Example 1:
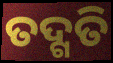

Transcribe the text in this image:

ତଦ୍ଗତି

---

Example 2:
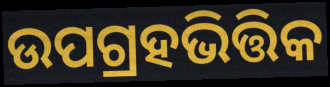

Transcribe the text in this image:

ଉପଗ୍ରହଭିତ୍ତିକ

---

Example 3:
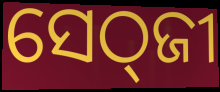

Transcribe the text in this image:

ସେଠ୍‌ଜୀ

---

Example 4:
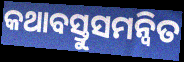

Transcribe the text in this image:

କଥାବସ୍ତୁସମନ୍ୱିତ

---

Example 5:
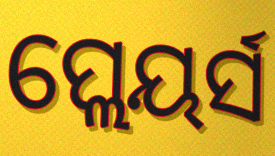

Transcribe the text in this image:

ପ୍ଲେୟର୍ସ